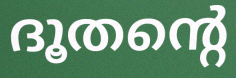
ദൂതന്റെ